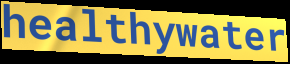
healthywater